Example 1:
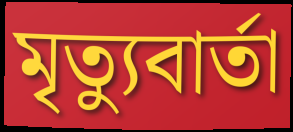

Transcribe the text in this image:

মৃত্যুবার্তা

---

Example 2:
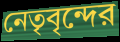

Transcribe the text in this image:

নেতৃবৃন্দের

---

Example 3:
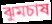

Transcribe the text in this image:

ঝুমচাষ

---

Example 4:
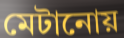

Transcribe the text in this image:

মেটানোয়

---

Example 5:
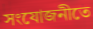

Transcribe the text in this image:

সংযোজনীতে